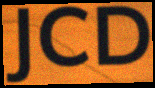
JCD